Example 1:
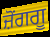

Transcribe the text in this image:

ਜ਼ੋਂਗਗੂ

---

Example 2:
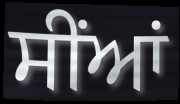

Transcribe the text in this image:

ਸੀਂਆਂ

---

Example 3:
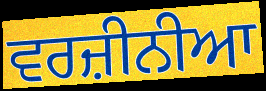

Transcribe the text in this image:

ਵਰਜ਼ੀਨੀਆ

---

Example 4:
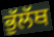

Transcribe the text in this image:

ਭੁੱਲੱਥ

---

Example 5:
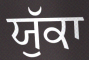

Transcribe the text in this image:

ਯੁੱਕਾ